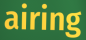
airing